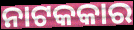
ନାଟକକାର